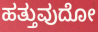
ಹತ್ತುವುದೋ